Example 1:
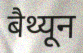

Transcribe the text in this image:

बैथ्यून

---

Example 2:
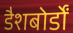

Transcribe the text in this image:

डैशबोर्डों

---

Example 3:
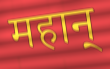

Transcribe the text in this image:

महान्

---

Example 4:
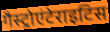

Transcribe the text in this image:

गैस्ट्रोएंटेराइटिस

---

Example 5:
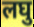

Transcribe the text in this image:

लघु